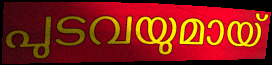
പുടവയുമായ്